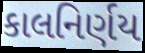
કાલનિર્ણય